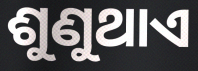
ଶୁଣୁଥାଏ